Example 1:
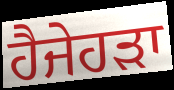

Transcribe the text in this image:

ਹੈਜੇਹੜਾ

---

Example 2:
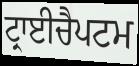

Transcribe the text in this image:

ਟ੍ਰਾਈਚੈਪਟਮ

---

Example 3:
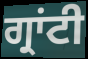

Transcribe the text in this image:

ਗ੍ਰਾਂਟੀ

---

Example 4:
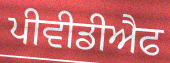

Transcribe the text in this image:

ਪੀਵੀਡੀਐਫ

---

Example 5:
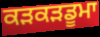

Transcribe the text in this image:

ਕੜਕੜਡੂਮਾ